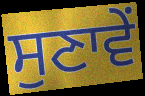
ਸੁਣਾਵੇਂ